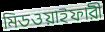
মিডওয়াইফারী